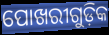
ପୋଖରୀଗୁଡ଼ିକ